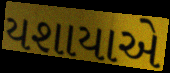
યશાયાએ